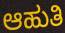
ಆಹುತಿ